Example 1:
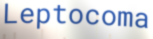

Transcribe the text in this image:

Leptocoma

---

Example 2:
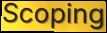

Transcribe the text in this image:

Scoping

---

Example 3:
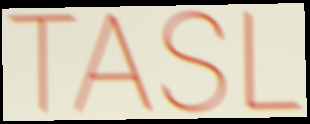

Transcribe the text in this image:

TASL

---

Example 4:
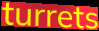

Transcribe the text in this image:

turrets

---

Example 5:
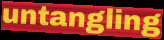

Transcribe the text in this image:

untangling